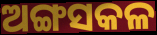
ଅଙ୍ଗସକଳ